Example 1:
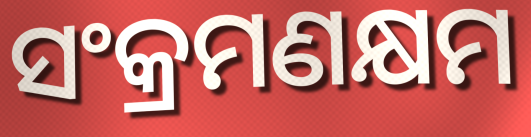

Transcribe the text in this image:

ସଂକ୍ରମଣକ୍ଷମ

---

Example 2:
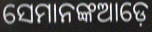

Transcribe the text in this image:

ସେମାନଙ୍କଆଡ଼େ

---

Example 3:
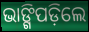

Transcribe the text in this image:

ଭାଙ୍ଗିପଡ଼ିଲେ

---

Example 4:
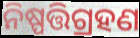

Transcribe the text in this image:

ନିଷ୍ପତ୍ତିଗ୍ରହଣ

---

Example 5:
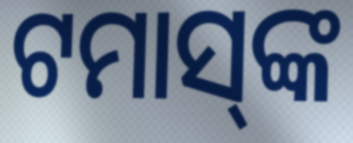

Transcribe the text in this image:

ଟମାସ୍‌ଙ୍କ